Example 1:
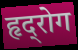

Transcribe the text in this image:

हृद्‍रोग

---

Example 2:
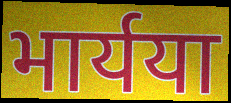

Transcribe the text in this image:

भार्यया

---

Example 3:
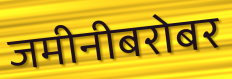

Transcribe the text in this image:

जमीनीबरोबर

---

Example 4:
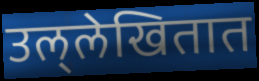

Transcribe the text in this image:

उल्लेखितात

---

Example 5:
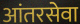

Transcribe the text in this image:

आंतरसेवा